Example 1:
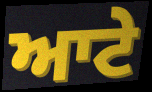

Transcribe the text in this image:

ਆਟੇ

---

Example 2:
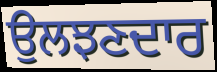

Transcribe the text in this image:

ਉਲਝਣਦਾਰ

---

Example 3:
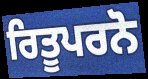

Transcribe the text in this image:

ਰਿਤੂਪਰਨੋ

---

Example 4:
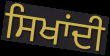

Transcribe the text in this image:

ਸਿਖਾਂਦੀ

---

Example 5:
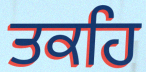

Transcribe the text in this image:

ਤਕਹਿ